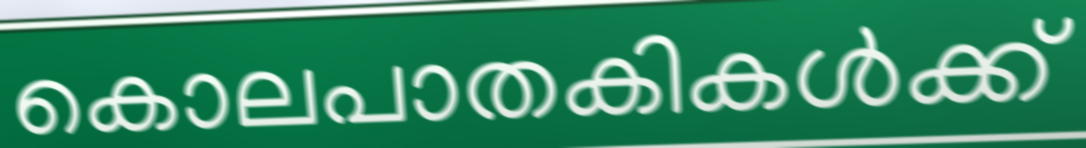
കൊലപാതകികൾക്ക്